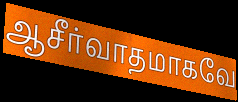
ஆசீர்வாதமாகவே